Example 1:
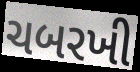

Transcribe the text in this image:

ચબરખી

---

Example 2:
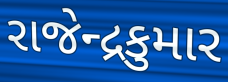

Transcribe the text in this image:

રાજેન્દ્રકુમાર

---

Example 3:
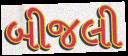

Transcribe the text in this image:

બીજલી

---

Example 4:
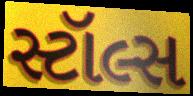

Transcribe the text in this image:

સ્ટૉલ્સ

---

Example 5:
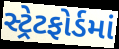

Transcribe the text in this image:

સ્ટ્રેટફોર્ડમાં